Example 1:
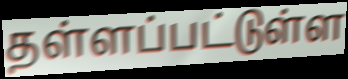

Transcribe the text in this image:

தள்ளப்பட்டுள்ள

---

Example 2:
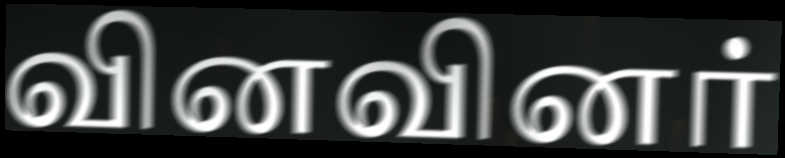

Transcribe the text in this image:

வினவினர்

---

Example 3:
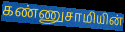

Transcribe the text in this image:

கண்ணுசாமியின்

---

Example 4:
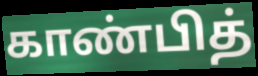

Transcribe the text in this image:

காண்பித்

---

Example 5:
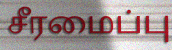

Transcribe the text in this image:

சீரமைப்பு